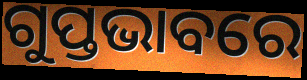
ଗୁପ୍ତଭାବରେ